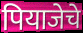
पियाजेचे